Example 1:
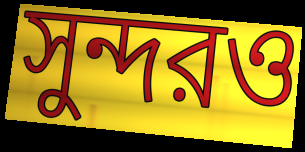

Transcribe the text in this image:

সুন্দরও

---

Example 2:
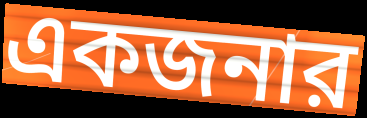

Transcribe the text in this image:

একজনার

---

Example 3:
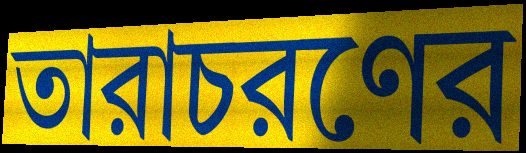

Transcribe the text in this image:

তারাচরণের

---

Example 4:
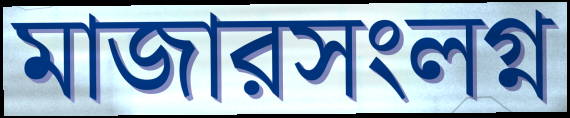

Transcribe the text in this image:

মাজারসংলগ্ন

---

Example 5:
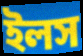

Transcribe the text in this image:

ইলস